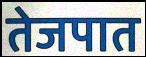
तेजपात